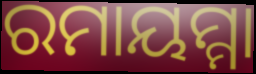
ରମାୟମ୍ମା